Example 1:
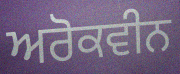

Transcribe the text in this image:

ਅਰੋਕਵੀਨ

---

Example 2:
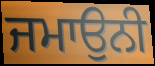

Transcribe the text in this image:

ਜਮਾਉਨੀ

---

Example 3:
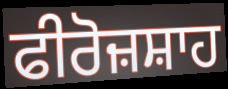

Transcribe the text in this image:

ਫੀਰੋਜ਼ਸ਼ਾਹ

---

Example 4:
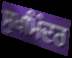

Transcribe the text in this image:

ਸੁਖਮਿੰਦਰ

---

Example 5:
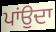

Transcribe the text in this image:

ਪਾਂਉਦਾ